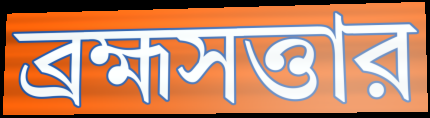
ব্রহ্মসত্তার